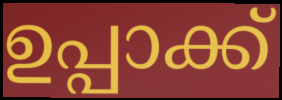
ഉപ്പാക്ക്